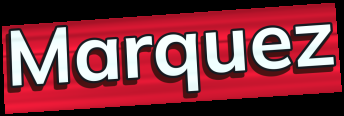
Marquez